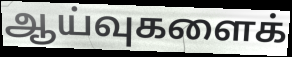
ஆய்வுகளைக்